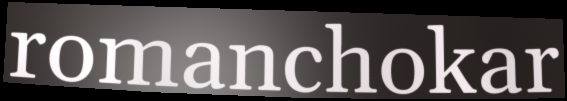
romanchokar